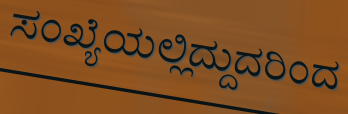
ಸಂಖ್ಯೆಯಲ್ಲಿದ್ದುದರಿಂದ